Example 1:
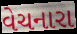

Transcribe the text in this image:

વેચનારા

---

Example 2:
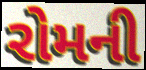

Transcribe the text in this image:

રોમની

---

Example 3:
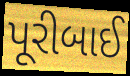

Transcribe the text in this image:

પૂરીબાઈ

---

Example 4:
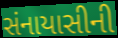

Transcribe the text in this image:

સંનાયાસીની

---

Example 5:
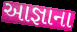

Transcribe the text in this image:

આજ્ઞાના